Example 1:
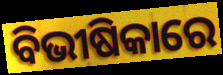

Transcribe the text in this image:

ବିଭୀଷିକାରେ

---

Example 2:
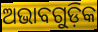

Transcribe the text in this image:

ଅଭାବଗୁଡ଼ିକ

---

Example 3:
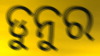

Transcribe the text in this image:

ଡୁନୁର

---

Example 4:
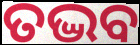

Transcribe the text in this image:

ତଦ୍ଭବ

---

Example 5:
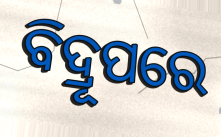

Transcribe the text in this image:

ବିଦ୍ରୂପରେ